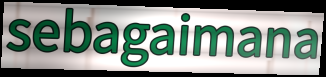
sebagaimana